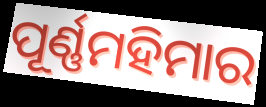
ପୂର୍ଣ୍ଣମହିମାର